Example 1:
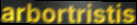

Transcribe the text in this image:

arbortristis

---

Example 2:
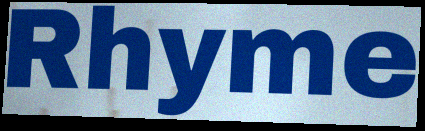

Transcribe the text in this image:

Rhyme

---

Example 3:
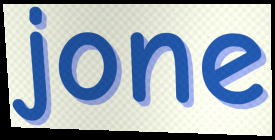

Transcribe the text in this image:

jone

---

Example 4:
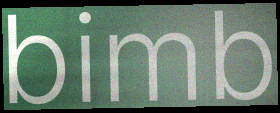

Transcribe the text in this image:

bimb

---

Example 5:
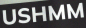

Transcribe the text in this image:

USHMM